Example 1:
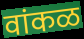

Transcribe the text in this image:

वांकळ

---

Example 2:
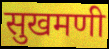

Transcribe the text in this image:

सुखमणी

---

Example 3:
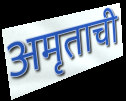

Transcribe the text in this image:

अमृताची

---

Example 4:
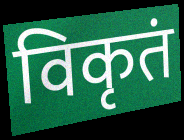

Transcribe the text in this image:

विकृतं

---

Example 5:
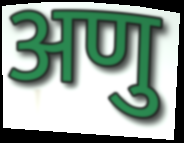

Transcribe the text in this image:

अणु